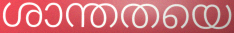
ശാന്തതയെ